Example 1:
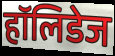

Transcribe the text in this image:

हॉलिडेज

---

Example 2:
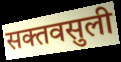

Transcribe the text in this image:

सक्तवसुली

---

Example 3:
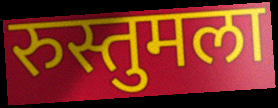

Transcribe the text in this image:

रुस्तुमला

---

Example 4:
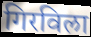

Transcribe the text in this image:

गिरविला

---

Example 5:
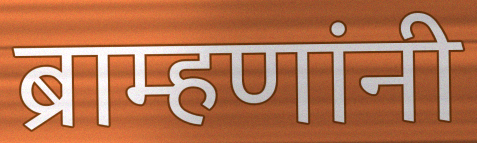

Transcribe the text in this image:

ब्राम्हणांनी